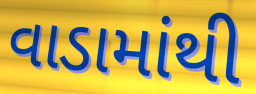
વાડામાંથી